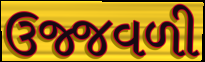
ઉજ્જવળી